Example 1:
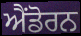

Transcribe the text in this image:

ਐਂਡੋਰਨ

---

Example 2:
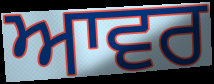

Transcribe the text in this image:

ਆਵਰ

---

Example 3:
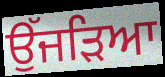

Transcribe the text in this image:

ਉੱਜੜਿਆ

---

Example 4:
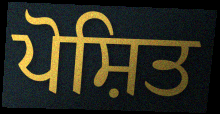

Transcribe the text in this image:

ਪੋਸ਼ਿਤ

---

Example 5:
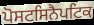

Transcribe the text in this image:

ਪੋਸਟਸਿਨੈਪਟਿਕ